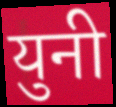
युनी